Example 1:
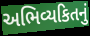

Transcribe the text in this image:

અભિવ્યકિતનું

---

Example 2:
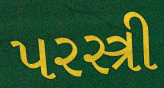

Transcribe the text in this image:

પરસ્ત્રી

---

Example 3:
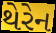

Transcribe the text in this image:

થેરેન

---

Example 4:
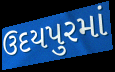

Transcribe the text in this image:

ઉદયપુરમાં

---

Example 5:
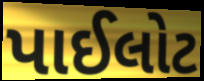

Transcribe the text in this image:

પાઈલોટ